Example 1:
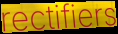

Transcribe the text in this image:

rectifiers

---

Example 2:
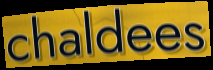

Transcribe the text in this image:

chaldees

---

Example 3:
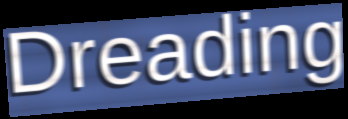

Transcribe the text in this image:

Dreading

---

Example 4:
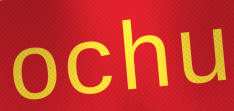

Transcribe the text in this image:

ochu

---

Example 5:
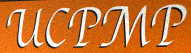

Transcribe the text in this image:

UCPMP